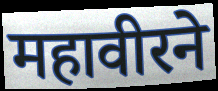
महावीरने